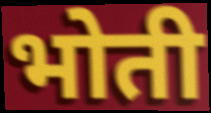
भोती